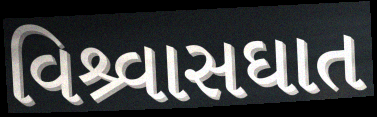
વિશ્ર્વાસઘાત